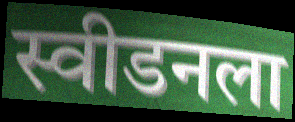
स्वीडनला